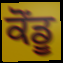
ਕੋਂਡੂ